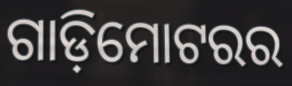
ଗାଡ଼ିମୋଟରର